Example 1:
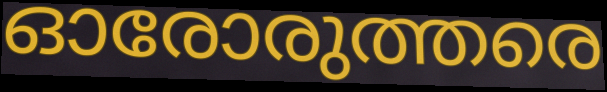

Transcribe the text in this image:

ഓരോരുത്തരെ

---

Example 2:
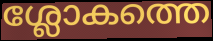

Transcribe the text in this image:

ശ്ലോകത്തെ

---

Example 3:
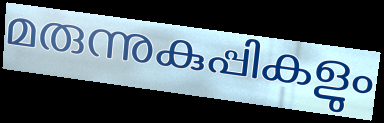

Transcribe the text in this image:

മരുന്നുകുപ്പികളും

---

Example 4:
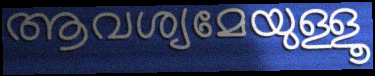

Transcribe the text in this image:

ആവശ്യമേയുള്ളൂ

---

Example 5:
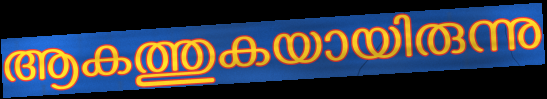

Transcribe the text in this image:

ആകത്തുകയായിരുന്നു